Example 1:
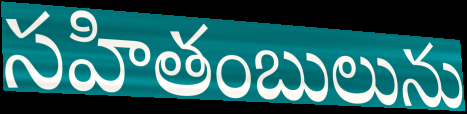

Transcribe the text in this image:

సహితంబులును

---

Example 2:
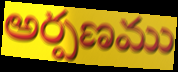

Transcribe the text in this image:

అర్పణము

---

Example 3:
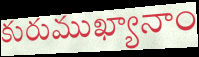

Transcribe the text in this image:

కురుముఖ్యానాం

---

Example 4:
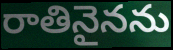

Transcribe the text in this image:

రాతినైనను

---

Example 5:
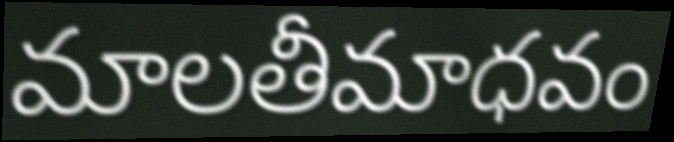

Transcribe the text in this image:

మాలతీమాధవం